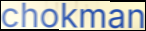
chokman